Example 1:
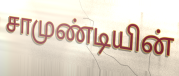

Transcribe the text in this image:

சாமுண்டியின்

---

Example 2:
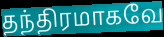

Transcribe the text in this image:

தந்திரமாகவே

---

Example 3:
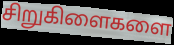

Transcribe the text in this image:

சிறுகிளைகளை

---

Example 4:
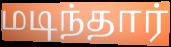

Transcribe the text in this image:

மடிந்தார்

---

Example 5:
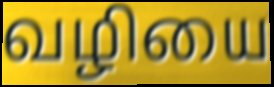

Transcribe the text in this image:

வழியை